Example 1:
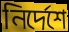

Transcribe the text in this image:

নির্দেশে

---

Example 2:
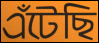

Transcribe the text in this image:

এঁটেছি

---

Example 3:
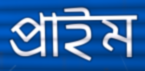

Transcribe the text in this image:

প্রাইম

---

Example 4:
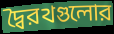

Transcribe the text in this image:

দ্বৈরথগুলোর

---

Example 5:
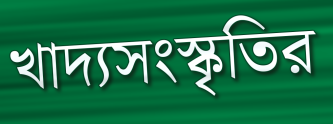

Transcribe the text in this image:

খাদ্যসংস্কৃতির